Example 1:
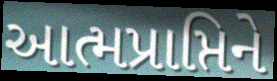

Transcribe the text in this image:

આત્મપ્રાપ્તિને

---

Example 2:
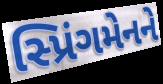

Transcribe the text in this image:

સ્પ્રિંગમેનને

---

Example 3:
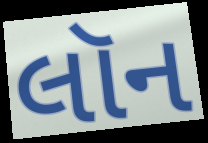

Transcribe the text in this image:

લૉન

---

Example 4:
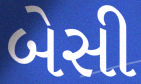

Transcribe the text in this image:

બેસી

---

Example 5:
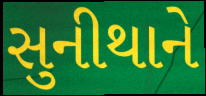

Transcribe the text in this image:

સુનીથાને